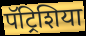
पॅट्रिशिया